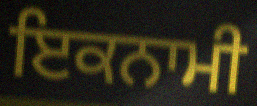
ਇਕਨਾਮੀ